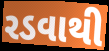
રડવાથી